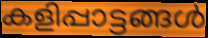
കളിപ്പാട്ടങ്ങൾ